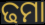
ଢମା